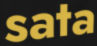
sata